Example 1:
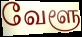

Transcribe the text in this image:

வேளூ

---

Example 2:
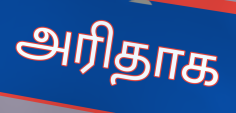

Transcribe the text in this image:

அரிதாக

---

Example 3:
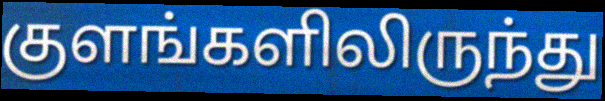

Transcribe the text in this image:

குளங்களிலிருந்து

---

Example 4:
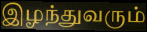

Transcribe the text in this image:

இழந்துவரும்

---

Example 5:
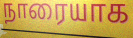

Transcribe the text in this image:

நாரையாக